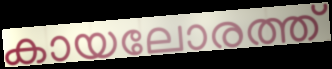
കായലോരത്ത്